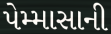
પેમ્માસાની